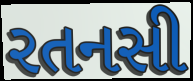
રતનસી